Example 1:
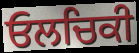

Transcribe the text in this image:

ਓਲਚਿਕੀ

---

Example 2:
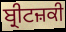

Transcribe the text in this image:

ਬ੍ਰੀਟਜ਼ਕੀ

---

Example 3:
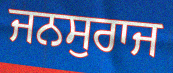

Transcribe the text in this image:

ਜਨਸੁਰਾਜ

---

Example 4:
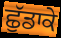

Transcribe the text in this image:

ਛੁੱਡਾਕੇ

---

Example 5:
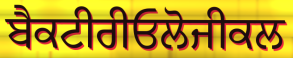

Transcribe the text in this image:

ਬੈਕਟੀਰੀਓਲੋਜੀਕਲ